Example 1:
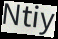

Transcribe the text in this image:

Ntiy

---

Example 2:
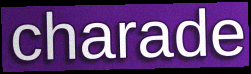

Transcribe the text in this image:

charade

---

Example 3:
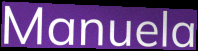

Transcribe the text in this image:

Manuela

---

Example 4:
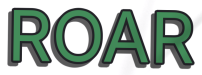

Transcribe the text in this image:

ROAR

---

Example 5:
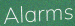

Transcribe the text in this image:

Alarms